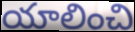
యాలించి